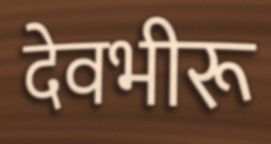
देवभीरू